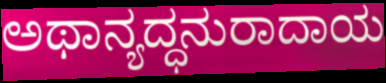
ಅಥಾನ್ಯದ್ಧನುರಾದಾಯ